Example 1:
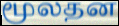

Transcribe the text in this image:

மூலதன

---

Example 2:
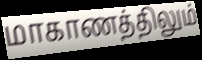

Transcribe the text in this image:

மாகாணத்திலும்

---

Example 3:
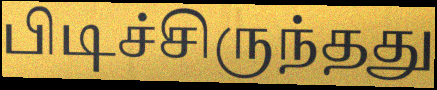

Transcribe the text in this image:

பிடிச்சிருந்தது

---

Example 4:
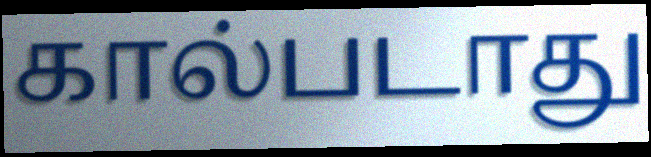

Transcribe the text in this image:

கால்படாது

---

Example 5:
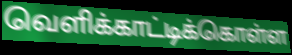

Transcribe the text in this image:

வெளிக்காட்டிக்கொள்ள